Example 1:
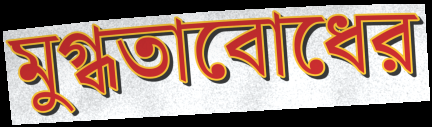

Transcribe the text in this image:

মুগ্ধতাবোধের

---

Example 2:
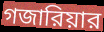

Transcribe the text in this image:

গজারিয়ার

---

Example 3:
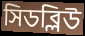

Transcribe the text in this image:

সিডব্লিউ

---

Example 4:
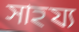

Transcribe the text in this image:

সাহয্য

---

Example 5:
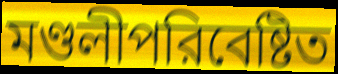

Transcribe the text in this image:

মণ্ডলীপরিবেষ্টিত